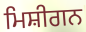
ਮਿਸ਼ੀਗਨ